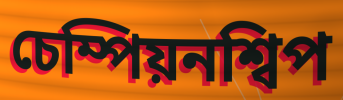
চেম্পিয়নশ্বিপ